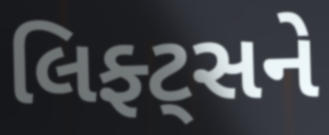
લિફ્ટ્સને